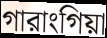
গারাংগিয়া